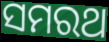
ସମରଥ